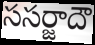
ససర్జాదౌ